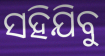
ସହିଯିବୁ